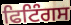
ਫਿਟਿੰਗਸ